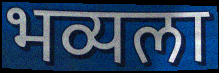
भव्यला